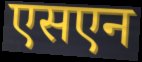
एसएन